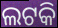
ଲଟକି